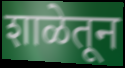
शाळेतून